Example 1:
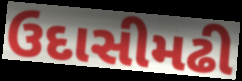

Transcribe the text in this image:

ઉદાસીમઢી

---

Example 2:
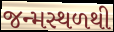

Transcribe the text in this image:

જન્મસ્થળથી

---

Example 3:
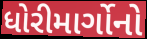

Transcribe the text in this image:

ધોરીમાર્ગોનો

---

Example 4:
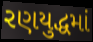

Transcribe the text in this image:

રણયુદ્ધમાં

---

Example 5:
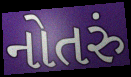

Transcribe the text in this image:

નોતરું